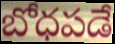
బోధపడే